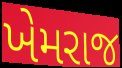
ખેમરાજ